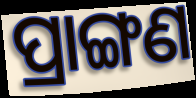
ପ୍ରାଙ୍ଗଣ